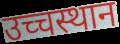
उच्चस्थान